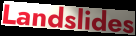
Landslides